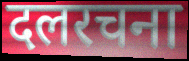
दलरचना